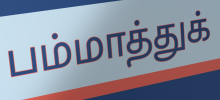
பம்மாத்துக்